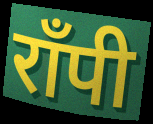
राँपी